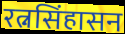
रत्नसिंहासन